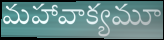
మహావాక్యమూ